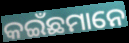
କଇଁଛମାନେ